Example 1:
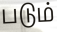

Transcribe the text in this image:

படும்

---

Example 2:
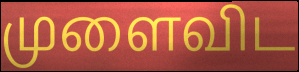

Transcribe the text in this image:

முளைவிட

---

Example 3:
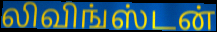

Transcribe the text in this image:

லிவிங்ஸ்டன்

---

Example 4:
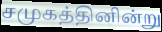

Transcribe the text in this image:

சமுகத்தினின்று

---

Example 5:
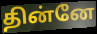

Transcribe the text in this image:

தின்னே